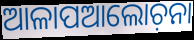
ଆଳାପଆଲୋଚ଼ନା